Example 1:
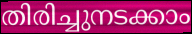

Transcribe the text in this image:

തിരിച്ചുനടക്കാം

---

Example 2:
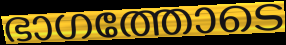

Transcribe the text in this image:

ഭാഗത്തോടെ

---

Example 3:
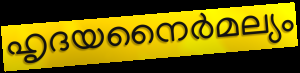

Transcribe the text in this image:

ഹൃദയനൈർമല്യം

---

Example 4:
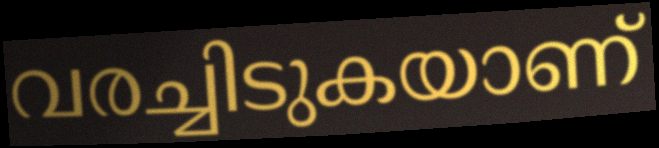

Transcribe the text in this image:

വരച്ചിടുകയാണ്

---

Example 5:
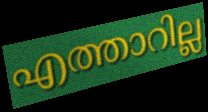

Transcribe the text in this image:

എത്താറില്ല